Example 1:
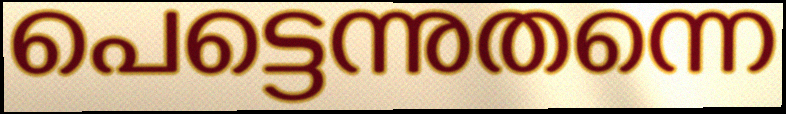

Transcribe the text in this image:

പെട്ടെന്നുതന്നെ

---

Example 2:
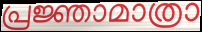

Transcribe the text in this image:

പ്രജ്ഞാമാത്രാ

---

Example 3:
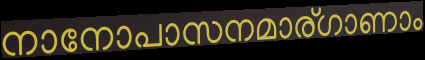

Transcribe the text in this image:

നാനോപാസനമാര്ഗാണാം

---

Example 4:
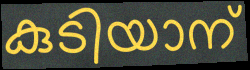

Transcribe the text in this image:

കുടിയാന്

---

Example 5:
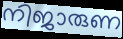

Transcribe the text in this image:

നിജാരുണ